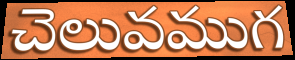
చెలువముగ